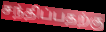
சந்திப்பதற்கு